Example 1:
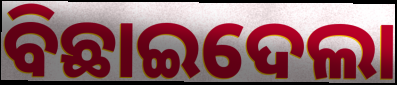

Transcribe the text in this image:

ବିଛାଇଦେଲା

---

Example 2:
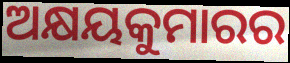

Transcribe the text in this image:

ଅକ୍ଷୟକୁମାରର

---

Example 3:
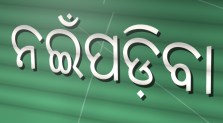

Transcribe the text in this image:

ନଇଁପଡ଼ିବା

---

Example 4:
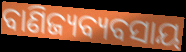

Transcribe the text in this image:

ବାଣିଜ୍ୟବ୍ୟବସାୟ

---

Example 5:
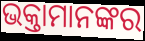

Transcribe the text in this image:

ଭକ୍ତାମାନଙ୍କର